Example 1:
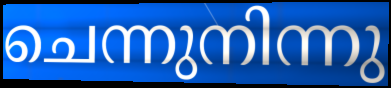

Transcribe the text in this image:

ചെന്നുനിന്നു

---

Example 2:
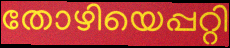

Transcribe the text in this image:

തോഴിയെപ്പറ്റി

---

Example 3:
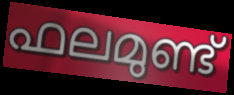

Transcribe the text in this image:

ഫലമുണ്ട്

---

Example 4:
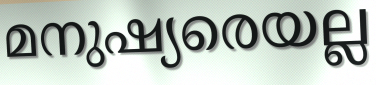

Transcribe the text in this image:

മനുഷ്യരെയല്ല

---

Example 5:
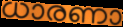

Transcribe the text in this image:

ധാരണാ